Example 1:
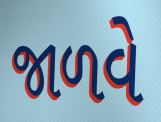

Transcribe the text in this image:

જાળવે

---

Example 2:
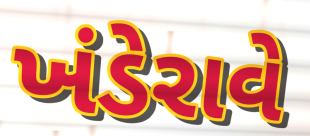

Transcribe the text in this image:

ખંડેરાવે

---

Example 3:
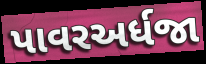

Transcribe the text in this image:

પાવરઅર્ધજા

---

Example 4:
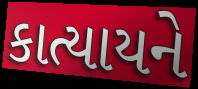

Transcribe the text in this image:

કાત્યાયને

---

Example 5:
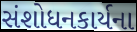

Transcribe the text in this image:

સંશોધનકાર્યના